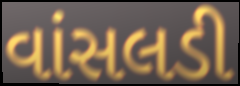
વાંસલડી